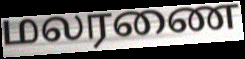
மலரணை